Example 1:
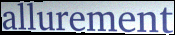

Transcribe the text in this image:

allurement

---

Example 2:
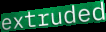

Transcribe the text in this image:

extruded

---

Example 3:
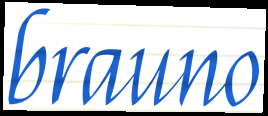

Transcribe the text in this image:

brauno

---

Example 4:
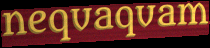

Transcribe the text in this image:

nequaquam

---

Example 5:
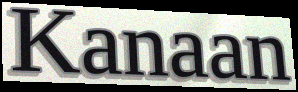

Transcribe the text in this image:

Kanaan